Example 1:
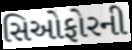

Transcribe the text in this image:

સિઓફોરની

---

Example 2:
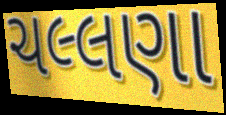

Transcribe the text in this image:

ચલ્લણા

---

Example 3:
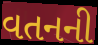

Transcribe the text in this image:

વતનની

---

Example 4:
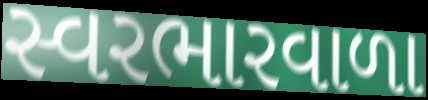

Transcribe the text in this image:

સ્વરભારવાળા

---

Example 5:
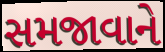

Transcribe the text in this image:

સમજાવાને